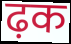
ढ़क